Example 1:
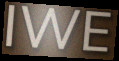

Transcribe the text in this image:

IWE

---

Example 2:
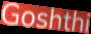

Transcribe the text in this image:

Goshthi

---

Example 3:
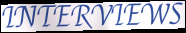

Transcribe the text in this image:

INTERVIEWS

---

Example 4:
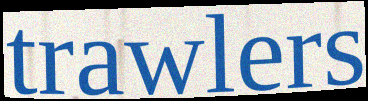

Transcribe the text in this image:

trawlers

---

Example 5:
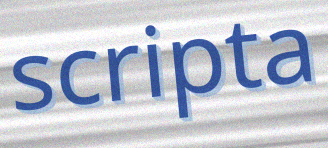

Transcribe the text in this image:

scripta